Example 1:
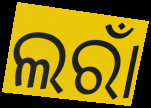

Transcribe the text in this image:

ଲରାଁ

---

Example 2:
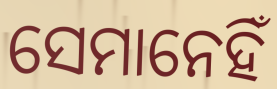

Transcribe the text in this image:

ସେମାନେହିଁ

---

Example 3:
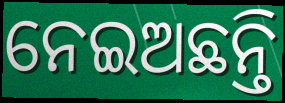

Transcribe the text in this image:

ନେଇଅଛନ୍ତି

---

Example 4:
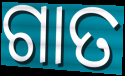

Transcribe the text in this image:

ଗାତ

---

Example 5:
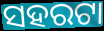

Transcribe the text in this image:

ସହରଟା